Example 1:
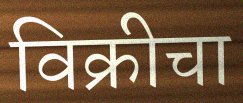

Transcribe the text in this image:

विक्रीचा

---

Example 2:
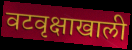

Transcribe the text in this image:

वटवृक्षाखाली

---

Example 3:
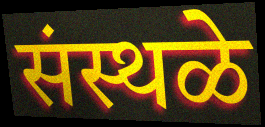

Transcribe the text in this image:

संस्थळे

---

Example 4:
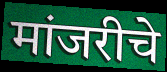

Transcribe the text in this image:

मांजरीचे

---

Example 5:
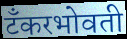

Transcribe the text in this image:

टँकरभोवती